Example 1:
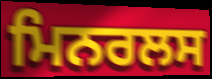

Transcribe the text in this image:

ਮਿਨਰਲਸ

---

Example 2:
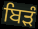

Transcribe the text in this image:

ਬਿੜੰ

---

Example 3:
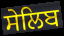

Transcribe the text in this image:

ਸੇਲਿਬ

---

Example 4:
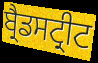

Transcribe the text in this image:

ਬ੍ਰੈਡਸਟ੍ਰੀਟ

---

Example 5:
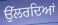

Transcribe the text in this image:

ਉੱਲਰਦਿਆਂ